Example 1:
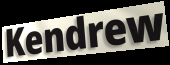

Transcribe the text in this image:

Kendrew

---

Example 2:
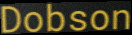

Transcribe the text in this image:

Dobson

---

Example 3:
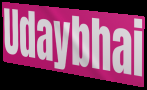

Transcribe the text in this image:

Udaybhai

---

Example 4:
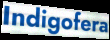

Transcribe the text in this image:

Indigofera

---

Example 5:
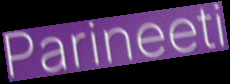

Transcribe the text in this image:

Parineeti